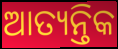
ଆତ୍ୟନ୍ତିକ